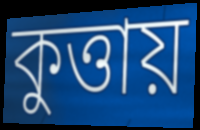
কুত্তায়